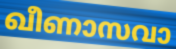
ഖീണാസവാ